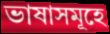
ভাষাসমূহে